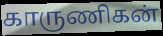
காருணிகன்